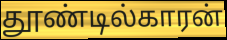
தூண்டில்காரன்